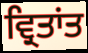
ਵ੍ਰਿਤਾਂਤ